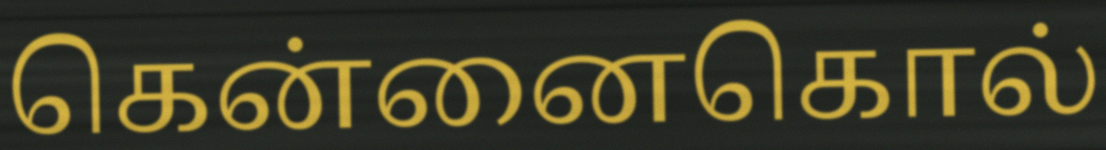
கென்னைகொல்